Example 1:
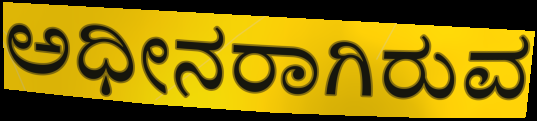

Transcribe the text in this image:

ಅಧೀನರಾಗಿರುವ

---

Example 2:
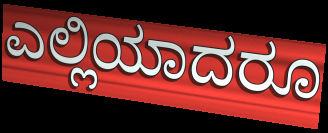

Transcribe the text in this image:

ಎಲ್ಲಿಯಾದರೂ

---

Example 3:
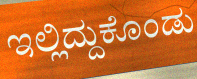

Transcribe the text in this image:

ಇಲ್ಲಿದ್ದುಕೊಂಡು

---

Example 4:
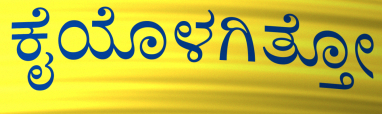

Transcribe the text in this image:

ಕೈಯೊಳಗಿತ್ತೋ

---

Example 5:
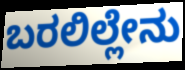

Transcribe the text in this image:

ಬರಲಿಲ್ಲೇನು